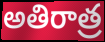
అతిరాత్ర